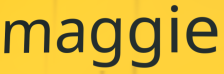
maggie